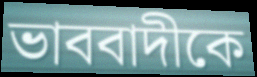
ভাববাদীকে